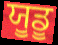
ਯੂਡੂ